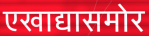
एखाद्यासमोर